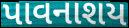
પાવનાશય